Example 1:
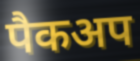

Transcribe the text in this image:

पैकअप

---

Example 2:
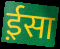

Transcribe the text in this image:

ई़सा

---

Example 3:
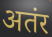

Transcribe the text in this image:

अतंर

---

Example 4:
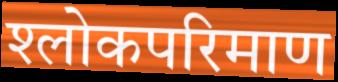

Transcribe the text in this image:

श्लोकपरिमाण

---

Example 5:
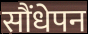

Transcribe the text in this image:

सौंधेपन